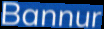
Bannur